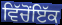
ਵਿੱਚੋਂਇੱਕ